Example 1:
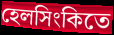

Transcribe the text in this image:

হেলসিংকিতে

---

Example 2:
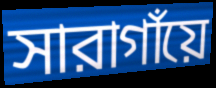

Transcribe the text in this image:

সারাগাঁয়ে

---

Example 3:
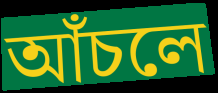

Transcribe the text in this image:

আঁচলে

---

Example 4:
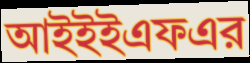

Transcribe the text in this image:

আইইইএফএর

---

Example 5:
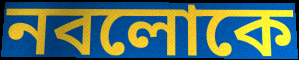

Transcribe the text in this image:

নবলোকে